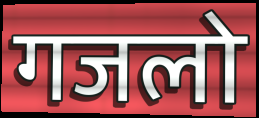
गजलो